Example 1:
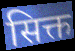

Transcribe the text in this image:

सिक्त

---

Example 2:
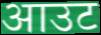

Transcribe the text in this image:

आउट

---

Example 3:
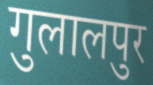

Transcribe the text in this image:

गुलालपुर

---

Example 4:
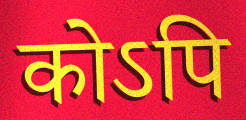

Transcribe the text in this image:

कोऽपि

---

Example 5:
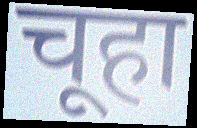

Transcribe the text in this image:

चूहा